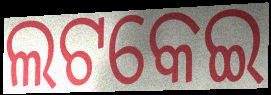
ଲଟକେଇ